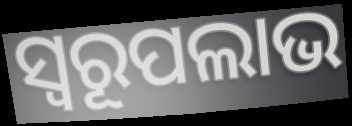
ସ୍ବରୂପଲାଭ